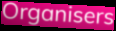
Organisers